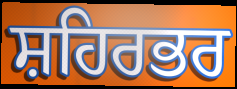
ਸ਼ਹਿਰਭਰ